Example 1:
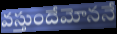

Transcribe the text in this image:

వస్తుందేమోననే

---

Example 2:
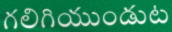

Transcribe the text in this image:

గలిగియుండుట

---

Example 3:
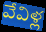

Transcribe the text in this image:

వేవిళ్ల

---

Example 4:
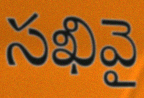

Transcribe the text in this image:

సఖివై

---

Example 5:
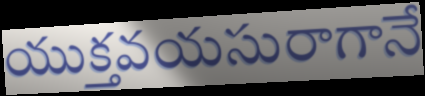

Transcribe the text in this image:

యుక్తవయసురాగానే